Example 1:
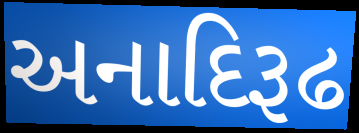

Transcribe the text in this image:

અનાદિરૂઢ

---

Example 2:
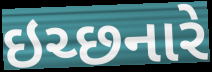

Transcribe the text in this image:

ઇચ્છનારે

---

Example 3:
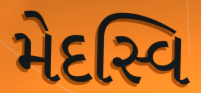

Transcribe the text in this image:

મેદસ્વિ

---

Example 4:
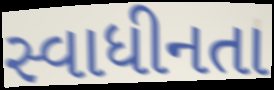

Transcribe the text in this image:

સ્વાધીનતા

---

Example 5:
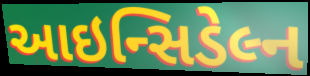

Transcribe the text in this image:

આઇન્સિડેલ્ન